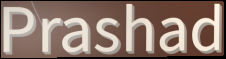
Prashad